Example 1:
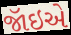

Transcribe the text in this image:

જૉઇએ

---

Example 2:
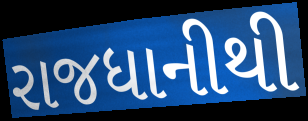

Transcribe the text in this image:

રાજધાનીથી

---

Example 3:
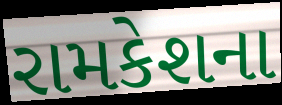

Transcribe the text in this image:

રામકેશના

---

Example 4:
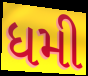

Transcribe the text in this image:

ધમી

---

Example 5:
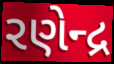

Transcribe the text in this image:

રણેન્દ્ર